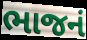
ભાજનં